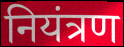
नियंत्रण